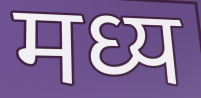
मध्य